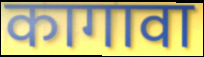
कागावा